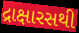
દ્રાક્ષારસથી